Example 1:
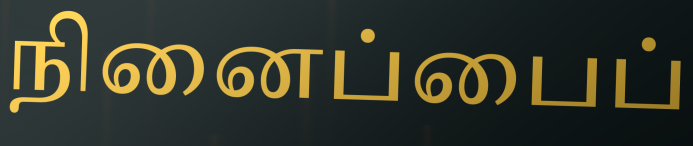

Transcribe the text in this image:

நினைப்பைப்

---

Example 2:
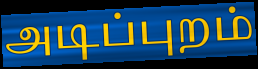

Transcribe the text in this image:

அடிப்புறம்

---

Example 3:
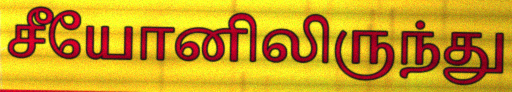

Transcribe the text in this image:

சீயோனிலிருந்து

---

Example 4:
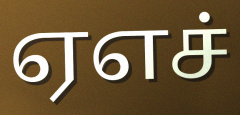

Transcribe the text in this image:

ஏஎச்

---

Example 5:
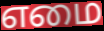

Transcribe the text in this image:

எமை